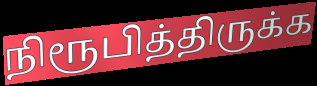
நிரூபித்திருக்க